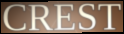
CREST